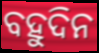
ବହୁଦିନ